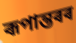
ৰূপান্তৰৰ